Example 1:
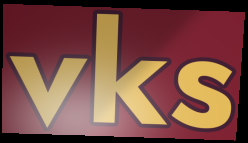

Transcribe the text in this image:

vks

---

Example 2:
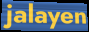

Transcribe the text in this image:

jalayen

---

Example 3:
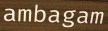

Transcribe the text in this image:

ambagam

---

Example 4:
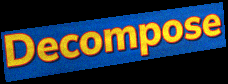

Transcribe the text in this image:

Decompose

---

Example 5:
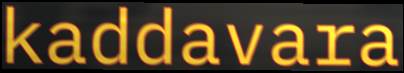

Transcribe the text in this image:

kaddavara